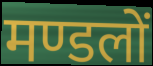
मण्‍डलों